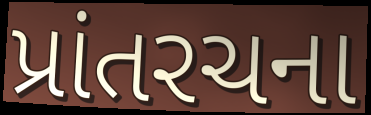
પ્રાંતરચના